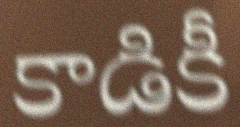
కాడికీ